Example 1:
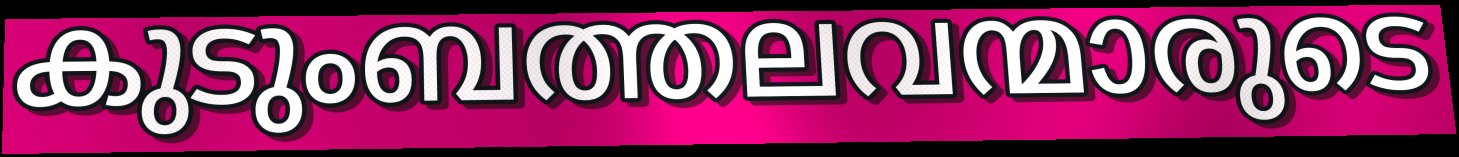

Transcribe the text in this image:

കുടുംബത്തലവന്മാരുടെ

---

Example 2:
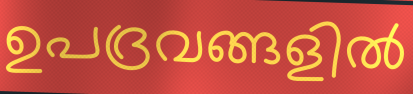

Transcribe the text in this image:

ഉപദ്രവങ്ങളിൽ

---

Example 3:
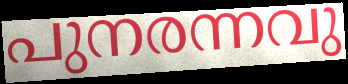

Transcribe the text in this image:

പുനരന്നവു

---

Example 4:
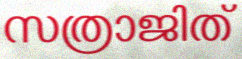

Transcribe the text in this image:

സത്രാജിത്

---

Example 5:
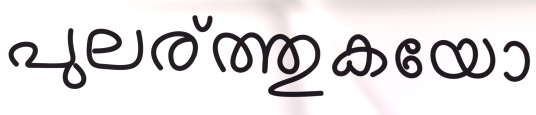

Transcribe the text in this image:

പുലര്ത്തുകയോ